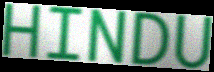
HINDU